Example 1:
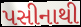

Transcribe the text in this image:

પસીનાથી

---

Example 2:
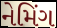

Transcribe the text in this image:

નેમિંગ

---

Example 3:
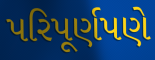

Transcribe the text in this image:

પરિપૂર્ણપણે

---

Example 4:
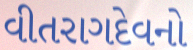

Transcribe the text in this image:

વીતરાગદેવનો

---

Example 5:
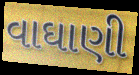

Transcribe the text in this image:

વાઘાણી